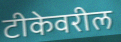
टीकेवरील